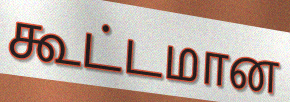
கூட்டமான